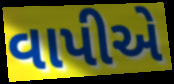
વાપીએ